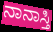
ನಾನಾಸ್ತಿ